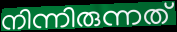
നിന്നിരുന്നത്